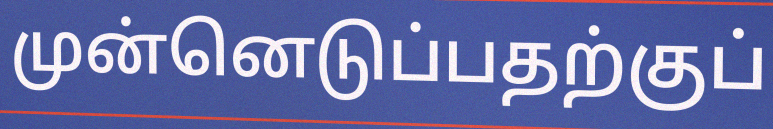
முன்னெடுப்பதற்குப்